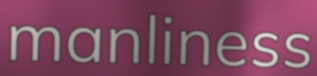
manliness